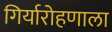
गिर्यारोहणाला